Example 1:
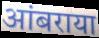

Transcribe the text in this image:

आंबराया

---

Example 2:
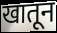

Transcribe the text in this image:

खातून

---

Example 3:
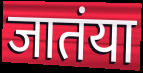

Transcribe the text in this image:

जातंया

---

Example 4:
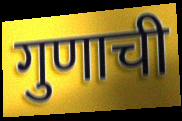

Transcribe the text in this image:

गुणाची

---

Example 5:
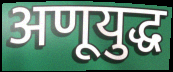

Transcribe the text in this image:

अणूयुद्ध